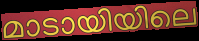
മാടായിയിലെ